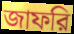
জাফরি